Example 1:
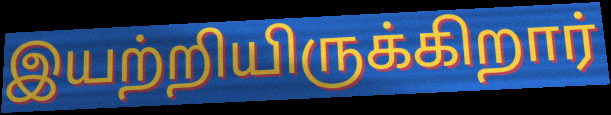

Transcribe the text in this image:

இயற்றியிருக்கிறார்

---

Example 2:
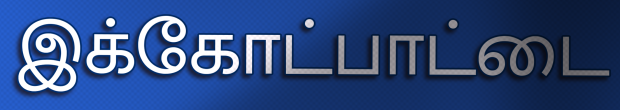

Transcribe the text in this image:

இக்கோட்பாட்டை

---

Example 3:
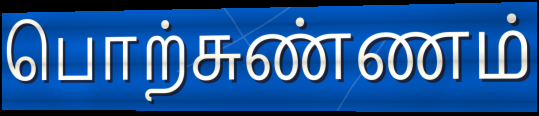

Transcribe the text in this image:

பொற்சுண்ணம்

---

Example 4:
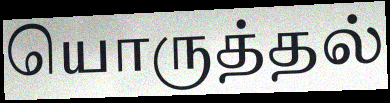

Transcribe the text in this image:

யொருத்தல்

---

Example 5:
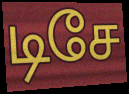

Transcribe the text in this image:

டிசே